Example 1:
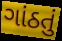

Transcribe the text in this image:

ગાંઠતું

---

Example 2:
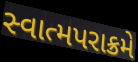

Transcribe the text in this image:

સ્વાત્મપરાક્રમે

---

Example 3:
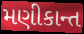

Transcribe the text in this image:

મણીકાન્ત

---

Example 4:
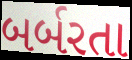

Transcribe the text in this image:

બર્બરતા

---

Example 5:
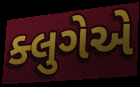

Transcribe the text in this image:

ક્લુગેએ